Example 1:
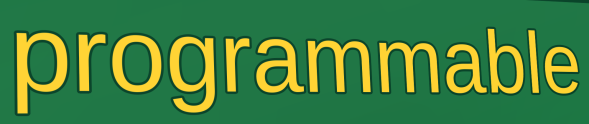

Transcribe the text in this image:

programmable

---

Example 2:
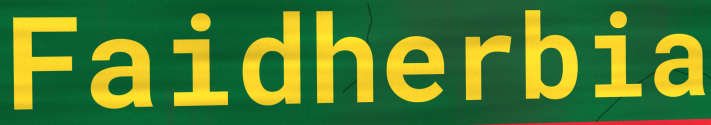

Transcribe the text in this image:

Faidherbia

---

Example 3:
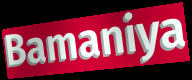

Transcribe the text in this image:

Bamaniya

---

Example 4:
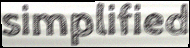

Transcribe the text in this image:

simplified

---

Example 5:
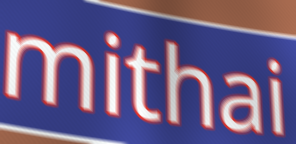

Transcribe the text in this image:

mithai